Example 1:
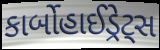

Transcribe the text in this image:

કાર્બોહાઈડ્રેટ્સ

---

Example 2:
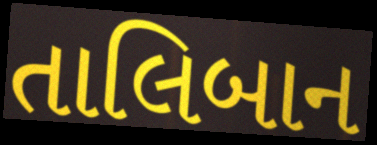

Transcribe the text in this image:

તાલિબાન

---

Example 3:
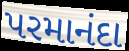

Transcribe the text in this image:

પરમાનંદા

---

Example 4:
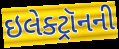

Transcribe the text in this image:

ઇલેક્ટ્રૉનની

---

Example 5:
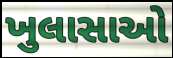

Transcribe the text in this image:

ખુલાસાઓ